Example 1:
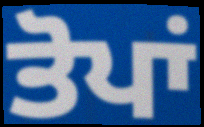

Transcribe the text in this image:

ਤੋਪਾਂ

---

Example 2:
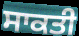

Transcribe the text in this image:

ਸਾਕਤੀ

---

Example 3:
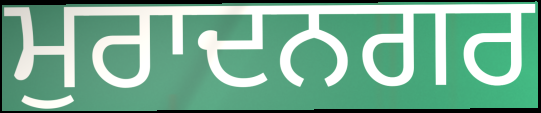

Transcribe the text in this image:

ਮੁਰਾਦਨਗਰ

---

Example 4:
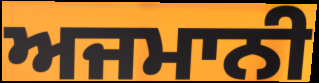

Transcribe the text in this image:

ਅਜਮਾਨੀ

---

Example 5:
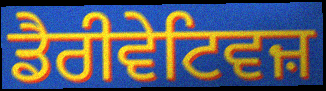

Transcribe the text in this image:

ਡੈਰੀਵੇਟਿਵਜ਼